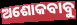
ଅଶୋକବାବୁ